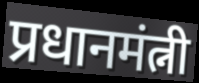
प्रधानमंत्नी